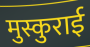
मुस्कुराई